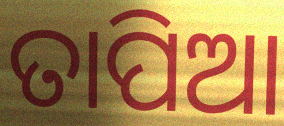
ତାପିଆ